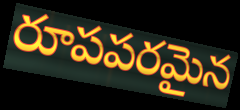
రూపపరమైన